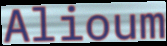
Alioum